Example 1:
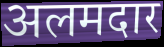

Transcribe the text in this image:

अलमदार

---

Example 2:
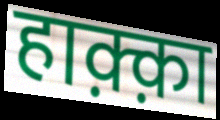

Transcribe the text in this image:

हाक़्क़ा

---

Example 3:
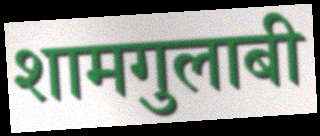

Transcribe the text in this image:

शामगुलाबी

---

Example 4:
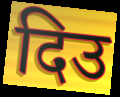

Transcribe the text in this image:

दिउ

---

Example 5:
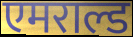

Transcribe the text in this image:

एमराल्ड